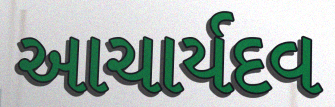
આચાર્યદવ